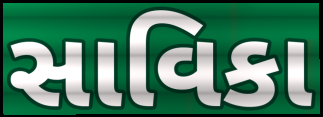
સાવિકા